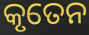
କୃତେନ